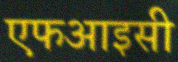
एफआइसी